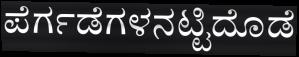
ಪೆರ್ಗಡೆಗಳನಟ್ಟಿದೊಡೆ